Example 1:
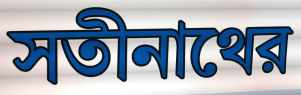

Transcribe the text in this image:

সতীনাথের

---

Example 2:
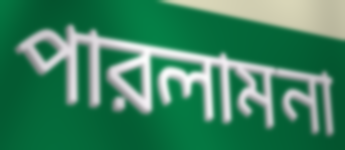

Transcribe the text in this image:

পারলামনা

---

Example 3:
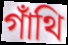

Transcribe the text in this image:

গাঁথি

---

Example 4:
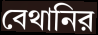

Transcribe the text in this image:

বেথানির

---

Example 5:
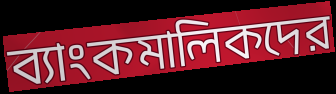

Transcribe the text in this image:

ব্যাংকমালিকদের